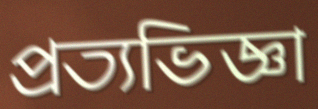
প্রত্যভিজ্ঞা